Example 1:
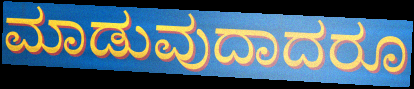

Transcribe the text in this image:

ಮಾಡುವುದಾದರೂ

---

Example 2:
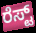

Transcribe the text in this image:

ರೆಸ್ಟ್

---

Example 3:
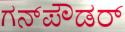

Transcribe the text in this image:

ಗನ್‌ಪೌಡರ್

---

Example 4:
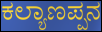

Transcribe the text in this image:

ಕಲ್ಯಾಣಪ್ಪನ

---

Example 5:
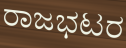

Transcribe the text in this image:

ರಾಜಭಟರ